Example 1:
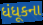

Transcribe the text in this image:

ધંધૂકના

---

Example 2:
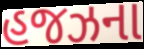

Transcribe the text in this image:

હજઝના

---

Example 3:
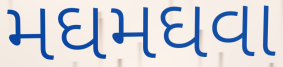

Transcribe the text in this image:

મઘમઘવા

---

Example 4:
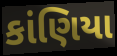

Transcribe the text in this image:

કાંણિયા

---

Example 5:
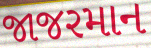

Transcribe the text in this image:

જાજરમાન